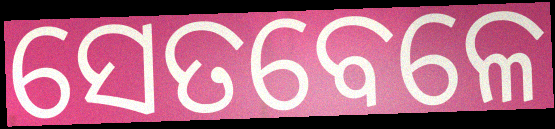
ସେତବେଳେ